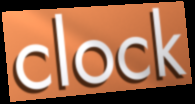
clock